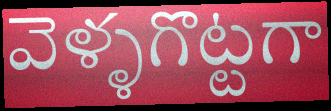
వెళ్ళగొట్టగా